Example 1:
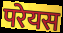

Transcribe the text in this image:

परेयस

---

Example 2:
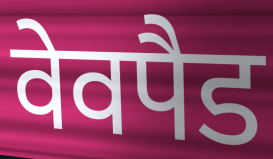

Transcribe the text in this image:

वेवपैड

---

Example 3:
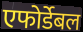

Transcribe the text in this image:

एफोर्डेबल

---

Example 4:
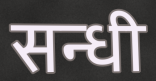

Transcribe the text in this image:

सन्धी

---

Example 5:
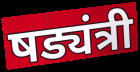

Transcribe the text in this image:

षड्यंत्री